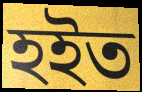
হইত